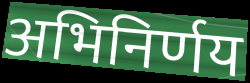
अभिनिर्णय